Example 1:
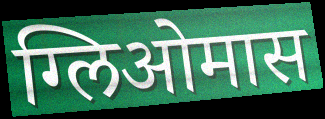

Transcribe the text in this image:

ग्लिओमास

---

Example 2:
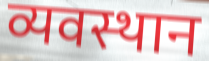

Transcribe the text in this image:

व्यवस्थान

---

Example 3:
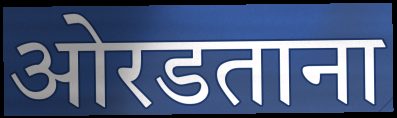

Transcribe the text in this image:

ओरडताना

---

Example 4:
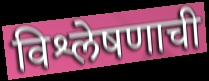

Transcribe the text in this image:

विश्लेषणाची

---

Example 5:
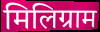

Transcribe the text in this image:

मिलिग्राम